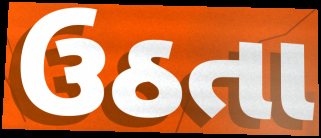
ઉઠતા